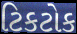
ટિકટોક